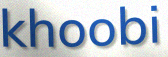
khoobi